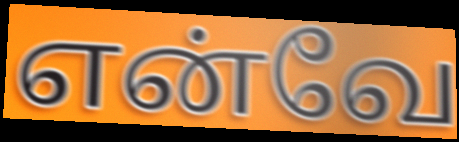
என்வே